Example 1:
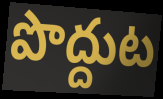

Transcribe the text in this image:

పొద్దుట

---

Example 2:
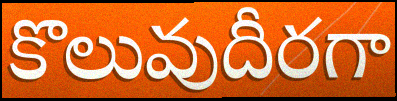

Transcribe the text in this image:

కొలువుదీరగా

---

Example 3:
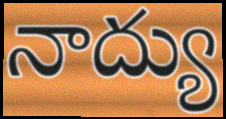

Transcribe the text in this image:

నాద్యు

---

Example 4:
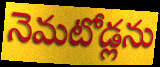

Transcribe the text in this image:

నెమటోడ్లను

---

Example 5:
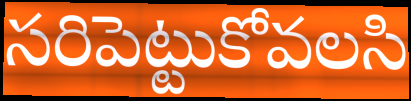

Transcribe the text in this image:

సరిపెట్టుకోవలసి